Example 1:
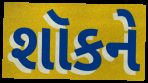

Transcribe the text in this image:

શૉકને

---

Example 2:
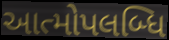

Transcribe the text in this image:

આત્મોપલબ્ધિ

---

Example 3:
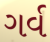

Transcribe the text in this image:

ગર્વ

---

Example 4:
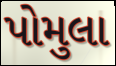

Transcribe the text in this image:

પોમુલા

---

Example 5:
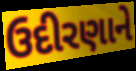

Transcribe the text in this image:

ઉદીરણાને